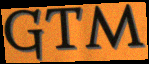
GTM